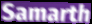
Samarth